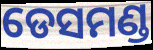
ଡେସମଣ୍ଡ